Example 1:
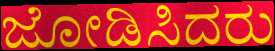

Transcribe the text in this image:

ಜೋಡಿಸಿದರು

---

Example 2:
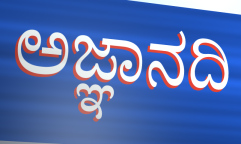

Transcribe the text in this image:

ಅಜ್ಞಾನದಿ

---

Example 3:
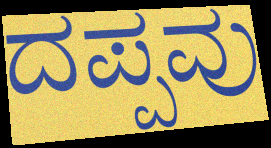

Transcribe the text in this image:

ದಪ್ಪವು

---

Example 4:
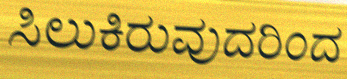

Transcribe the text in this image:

ಸಿಲುಕಿರುವುದರಿಂದ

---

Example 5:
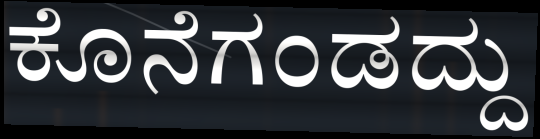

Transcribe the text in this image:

ಕೊನೆಗಂಡದ್ದು